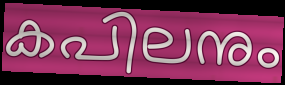
കപിലനും